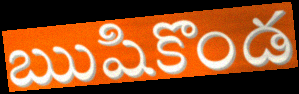
ఋషికొండ